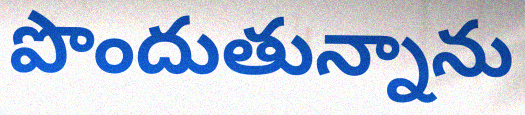
పొందుతున్నాను